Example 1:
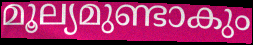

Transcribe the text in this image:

മൂല്യമുണ്ടാകും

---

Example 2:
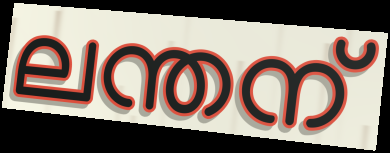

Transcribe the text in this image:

ലന്തന്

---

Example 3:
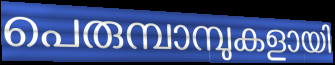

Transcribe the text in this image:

പെരുമ്പാമ്പുകളായി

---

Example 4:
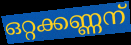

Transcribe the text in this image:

ഒറ്റക്കണ്ണന്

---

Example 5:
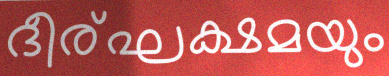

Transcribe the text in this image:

ദീര്ഘക്ഷമയും